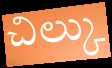
చిల్కు